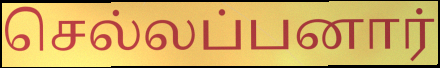
செல்லப்பனார்